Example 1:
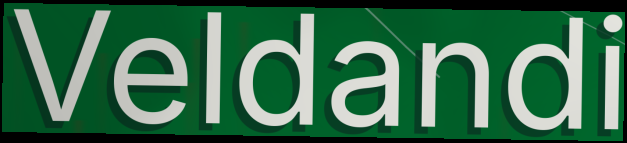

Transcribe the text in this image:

Veldandi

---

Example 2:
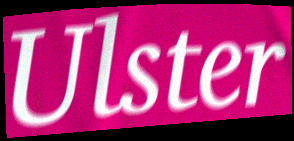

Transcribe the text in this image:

Ulster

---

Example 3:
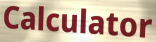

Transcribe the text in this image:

Calculator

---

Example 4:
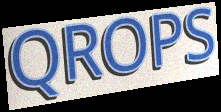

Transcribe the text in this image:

QROPS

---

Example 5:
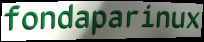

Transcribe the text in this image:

fondaparinux